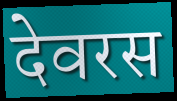
देवरस